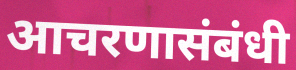
आचरणासंबंधी